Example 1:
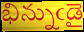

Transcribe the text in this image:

భిన్నుఁడై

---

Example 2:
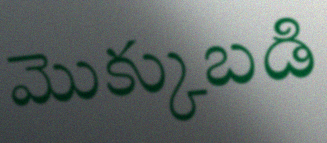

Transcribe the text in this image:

మొక్కుబడి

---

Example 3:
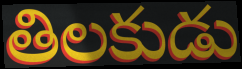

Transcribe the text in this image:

తిలకుడు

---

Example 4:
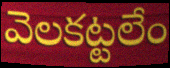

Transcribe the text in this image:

వెలకట్టలేం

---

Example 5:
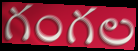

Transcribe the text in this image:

గంగల